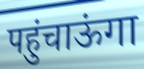
पहुंचाऊंगा